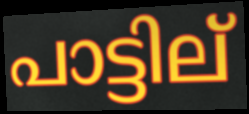
പാട്ടില്